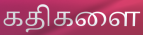
கதிகளை